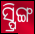
ସ୍ପ୍ରିଙ୍ଗ